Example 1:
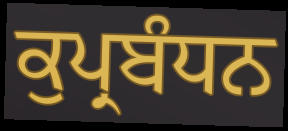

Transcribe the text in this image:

ਕੁਪ੍ਰਬੰਧਨ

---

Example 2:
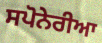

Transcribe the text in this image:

ਸਪੋਨੇਰੀਆ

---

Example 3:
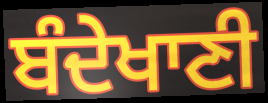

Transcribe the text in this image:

ਬੰਦੇਖਾਣੀ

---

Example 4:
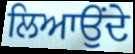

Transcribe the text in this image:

ਲਿਆਉੁਂਦੇ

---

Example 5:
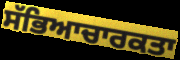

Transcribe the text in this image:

ਸੱਭਿਆਚਾਰਕਤਾ